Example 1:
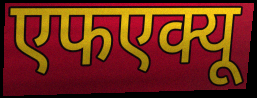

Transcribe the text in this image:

एफएक्यू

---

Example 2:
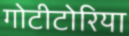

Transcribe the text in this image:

गोटीटोरिया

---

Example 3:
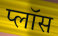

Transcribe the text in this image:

प्लॉस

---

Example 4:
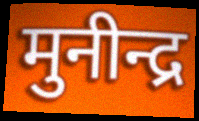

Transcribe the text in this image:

मुनीन्द्र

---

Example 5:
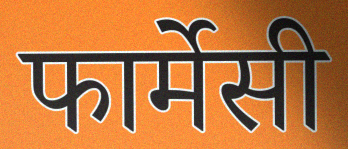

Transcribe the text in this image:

फार्मेसी